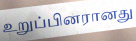
உறுப்பினரானது